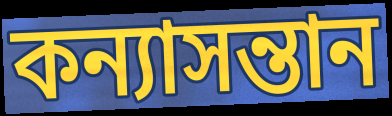
কন্যাসন্তান